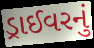
ડ્રાઈવરનું